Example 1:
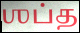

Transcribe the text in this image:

ஶப்த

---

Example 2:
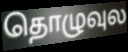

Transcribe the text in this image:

தொழுவுல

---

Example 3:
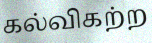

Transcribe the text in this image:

கல்விகற்ற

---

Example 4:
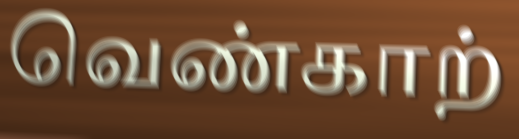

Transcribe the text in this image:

வெண்காற்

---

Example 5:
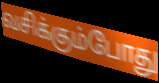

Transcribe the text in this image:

வசிக்கும்போது